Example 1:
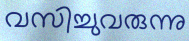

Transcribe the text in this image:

വസിച്ചുവരുന്നു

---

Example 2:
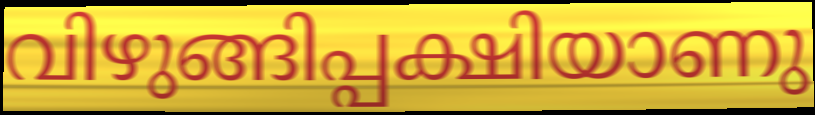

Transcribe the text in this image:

വിഴുങ്ങിപ്പക്ഷിയാണു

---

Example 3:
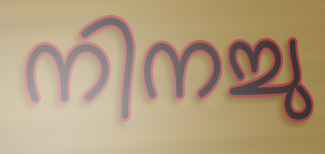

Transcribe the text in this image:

നിനച്ചു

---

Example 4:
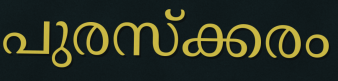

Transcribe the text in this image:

പുരസ്ക്കരം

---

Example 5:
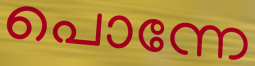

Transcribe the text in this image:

പൊന്നേ